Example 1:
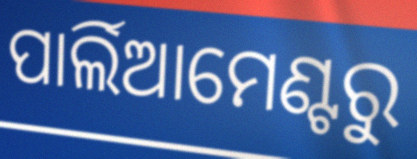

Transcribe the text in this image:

ପାର୍ଲିଆମେଣ୍ଟରୁ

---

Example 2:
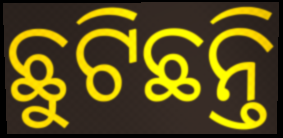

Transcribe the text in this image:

ଛୁଟିଛନ୍ତି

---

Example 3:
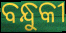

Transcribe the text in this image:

ବନ୍ଧୁକୀ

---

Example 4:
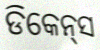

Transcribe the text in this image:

ଡିକେନ୍‌ସ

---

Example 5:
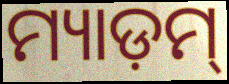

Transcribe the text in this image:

ମ୍ୟାଡ଼ମ୍